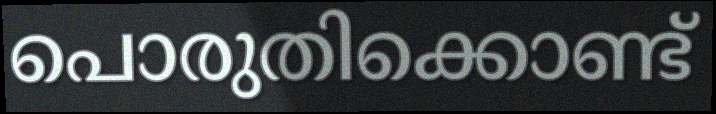
പൊരുതിക്കൊണ്ട്